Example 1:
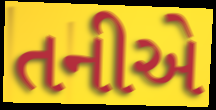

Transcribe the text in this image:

તનીએ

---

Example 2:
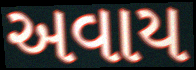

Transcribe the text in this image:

અવાય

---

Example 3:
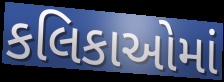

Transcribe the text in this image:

કલિકાઓમાં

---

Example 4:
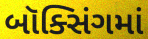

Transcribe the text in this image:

બૉક્સિંગમાં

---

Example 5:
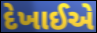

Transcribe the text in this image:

દેખાઈએ